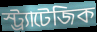
স্ট্র্যাটেজিক